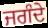
ਜਗੰਦੇ